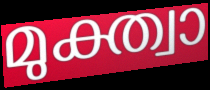
മുക്ത്വാ